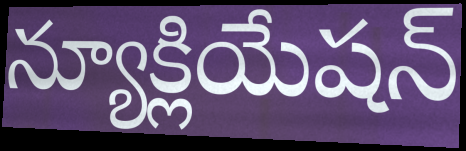
న్యూక్లియేషన్